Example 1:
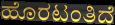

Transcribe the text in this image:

ಹೊರಟಂತಿದೆ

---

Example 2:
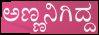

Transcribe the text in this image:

ಅಣ್ಣನಿಗಿದ್ದ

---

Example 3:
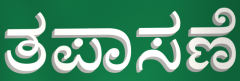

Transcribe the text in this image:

ತಪಾಸಣೆ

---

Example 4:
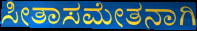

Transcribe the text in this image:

ಸೀತಾಸಮೇತನಾಗಿ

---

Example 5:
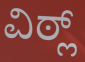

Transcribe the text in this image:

ವಿಠ್ಲ್